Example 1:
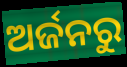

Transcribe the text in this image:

ଅର୍ଜନରୁ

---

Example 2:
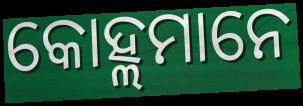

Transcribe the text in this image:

କୋହ୍ଲମାନେ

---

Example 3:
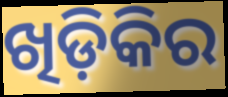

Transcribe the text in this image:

ଖିଡ଼ିକିର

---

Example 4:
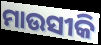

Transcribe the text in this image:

ମାଉସୀକି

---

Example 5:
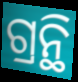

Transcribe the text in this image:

ଗ୍ରନ୍ଥି